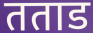
तताड